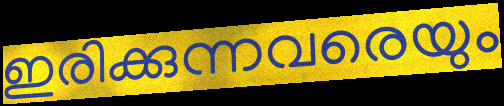
ഇരിക്കുന്നവരെയും